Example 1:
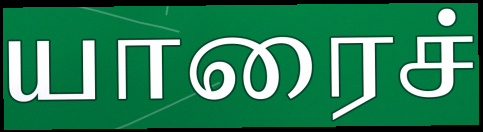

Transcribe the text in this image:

யாரைச்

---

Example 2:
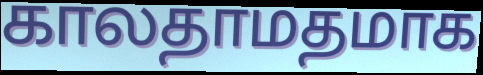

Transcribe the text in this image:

காலதாமதமாக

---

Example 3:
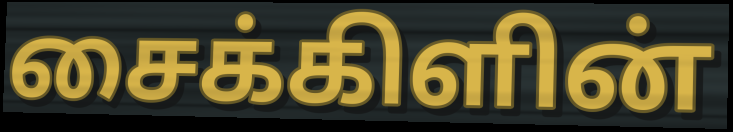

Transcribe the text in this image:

சைக்கிளின்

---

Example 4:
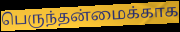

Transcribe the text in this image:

பெருந்தன்மைக்காக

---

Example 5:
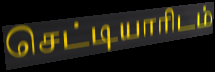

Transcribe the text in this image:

செட்டியாரிடம்